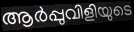
ആർപ്പുവിളിയുടെ